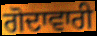
ਗੋਦਾਵਾਰੀ